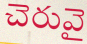
చెరువై